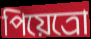
পিয়েত্রো